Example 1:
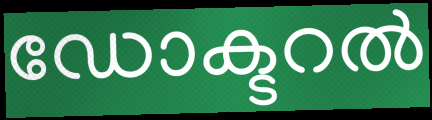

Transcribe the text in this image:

ഡോക്ടറൽ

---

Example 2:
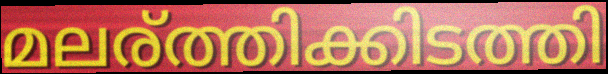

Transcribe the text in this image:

മലര്ത്തിക്കിടത്തി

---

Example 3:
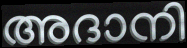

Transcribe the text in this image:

അദാനി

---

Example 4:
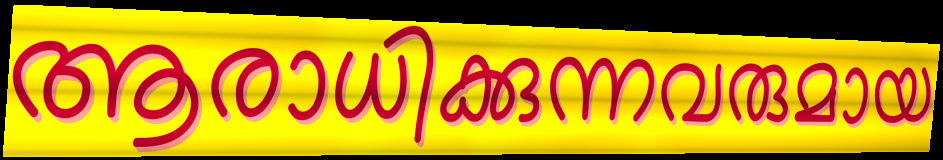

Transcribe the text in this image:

ആരാധിക്കുന്നവരുമായ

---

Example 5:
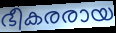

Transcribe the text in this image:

ഭീകരരായ